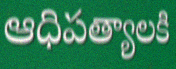
ఆధిపత్యాలకి